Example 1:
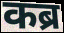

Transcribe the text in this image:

कब्र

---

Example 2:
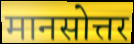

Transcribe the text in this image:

मानसोत्तर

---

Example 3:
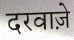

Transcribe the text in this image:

दरवाज़े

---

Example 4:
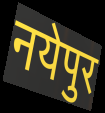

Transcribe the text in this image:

नयेपुर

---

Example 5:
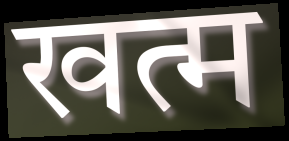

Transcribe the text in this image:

खत्‍म